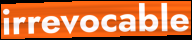
irrevocable